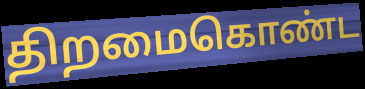
திறமைகொண்ட